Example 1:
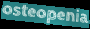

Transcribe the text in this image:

osteopenia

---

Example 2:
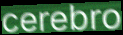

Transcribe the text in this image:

cerebro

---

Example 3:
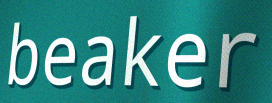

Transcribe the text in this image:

beaker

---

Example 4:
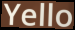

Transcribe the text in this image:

Yello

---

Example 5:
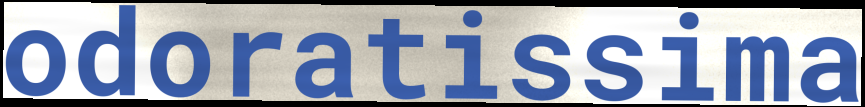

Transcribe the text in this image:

odoratissima